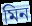
মিন